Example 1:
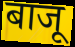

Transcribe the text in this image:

बाजू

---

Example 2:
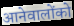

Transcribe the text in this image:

आनेवालोंको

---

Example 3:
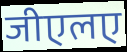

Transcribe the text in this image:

जीएलए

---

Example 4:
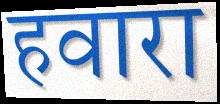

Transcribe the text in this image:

हवारा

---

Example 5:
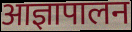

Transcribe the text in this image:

आज्ञापालन